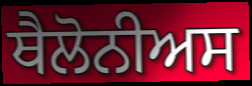
ਥੈਲੋਨੀਅਸ